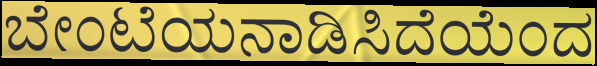
ಬೇಂಟೆಯನಾಡಿಸಿದೆಯೆಂದ